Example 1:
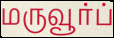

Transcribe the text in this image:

மருவூர்ப்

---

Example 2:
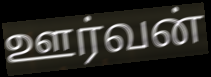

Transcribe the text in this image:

ஊர்வன்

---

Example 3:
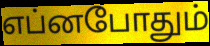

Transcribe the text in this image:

எப்னபோதும்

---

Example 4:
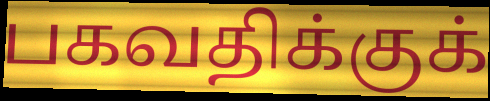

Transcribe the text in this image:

பகவதிக்குக்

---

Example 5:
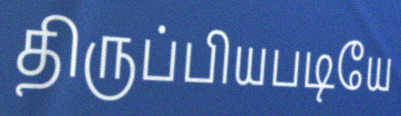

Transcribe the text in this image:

திருப்பியபடியே